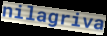
nilagriva